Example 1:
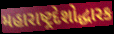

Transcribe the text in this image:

મહારાષ્ટ્રદેશોદ્ધારક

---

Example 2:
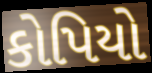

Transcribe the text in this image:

કોપિયો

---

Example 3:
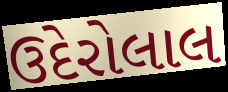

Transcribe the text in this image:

ઉદેરોલાલ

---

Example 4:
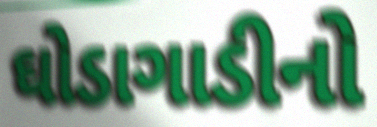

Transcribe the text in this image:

ઘોડાગાડીનો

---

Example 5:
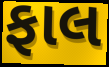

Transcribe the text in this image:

ફાલ